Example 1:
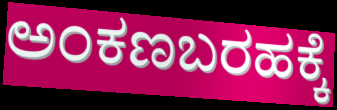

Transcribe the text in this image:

ಅಂಕಣಬರಹಕ್ಕೆ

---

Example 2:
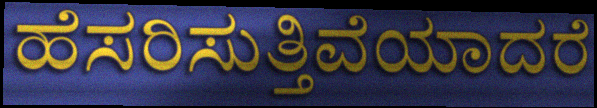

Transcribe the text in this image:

ಹೆಸರಿಸುತ್ತಿವೆಯಾದರೆ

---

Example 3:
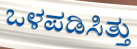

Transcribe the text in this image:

ಒಳಪಡಿಸಿತ್ತು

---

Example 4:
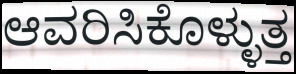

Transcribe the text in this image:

ಆವರಿಸಿಕೊಳ್ಳುತ್ತ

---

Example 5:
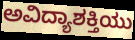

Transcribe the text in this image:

ಅವಿದ್ಯಾಶಕ್ತಿಯು